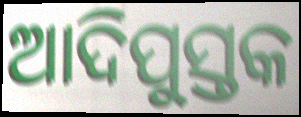
ଆଦିପୁସ୍ତକ